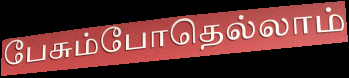
பேசும்போதெல்லாம்